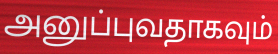
அனுப்புவதாகவும்